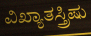
ವಿಖ್ಯಾತಸ್ತ್ರಿಷು